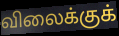
விலைக்குக்